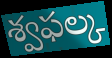
శ్వఫల్క